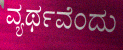
ವ್ಯರ್ಥವೆಂದು